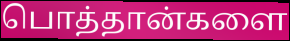
பொத்தான்களை